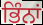
ਭਿੰਨਾਂ